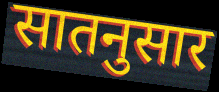
सातनुसार